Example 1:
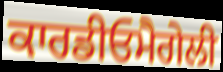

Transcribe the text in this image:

ਕਾਰਡੀਓਮੈਗੇਲੀ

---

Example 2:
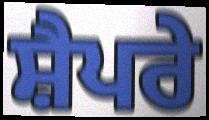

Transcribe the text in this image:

ਸ਼ੈਪਰੇ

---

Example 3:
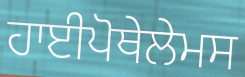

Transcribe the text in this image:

ਹਾਈਪੋਥੇਲੇਮਸ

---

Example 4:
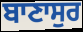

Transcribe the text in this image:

ਬਾਣਾਸੁਰ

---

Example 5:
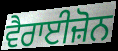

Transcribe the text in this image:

ਵੈਰਾਈਜ਼ੋਨ